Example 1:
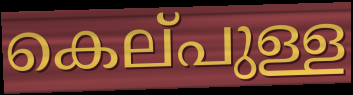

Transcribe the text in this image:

കെല്‌പുള്ള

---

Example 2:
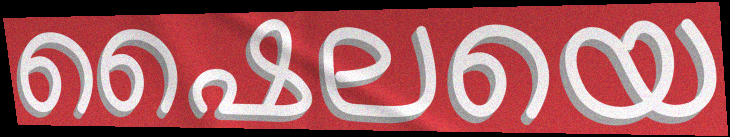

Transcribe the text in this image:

ഷൈലയെ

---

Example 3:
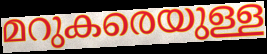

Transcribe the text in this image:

മറുകരെയുള്ള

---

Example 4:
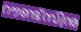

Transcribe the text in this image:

റൗണ്ട്സിനു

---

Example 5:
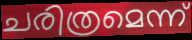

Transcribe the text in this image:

ചരിത്രമെന്ന്